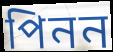
পিনন